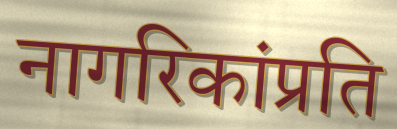
नागरिकांप्रति